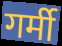
गर्मी